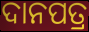
ଦାନପତ୍ର